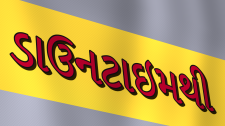
ડાઉનટાઇમથી